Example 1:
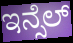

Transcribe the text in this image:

ಇನ್ಸೆಲ್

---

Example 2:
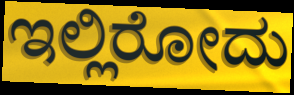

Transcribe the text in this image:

ಇಲ್ಲಿರೋದು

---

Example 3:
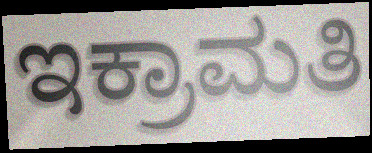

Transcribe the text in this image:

ಇಕ್ರಾಮತಿ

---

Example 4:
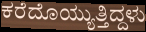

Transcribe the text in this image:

ಕರೆದೊಯ್ಯುತ್ತಿದ್ದಳು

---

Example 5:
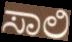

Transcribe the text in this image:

ಸಾಲಿ